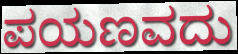
ಪಯಣವದು